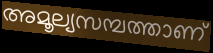
അമൂല്യസമ്പത്താണ്